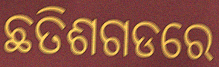
ଛତିଶଗଡରେ